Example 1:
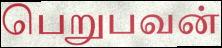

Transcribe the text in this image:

பெறுபவன்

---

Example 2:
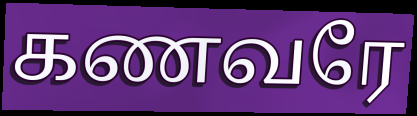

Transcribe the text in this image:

கணவரே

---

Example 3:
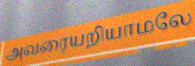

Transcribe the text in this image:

அவரையறியாமலே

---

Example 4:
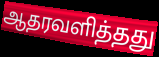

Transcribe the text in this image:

ஆதரவளித்தது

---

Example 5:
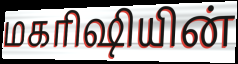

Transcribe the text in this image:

மகரிஷியின்